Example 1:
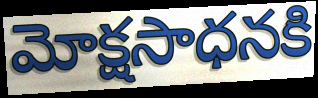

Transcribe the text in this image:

మోక్షసాధనకి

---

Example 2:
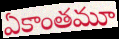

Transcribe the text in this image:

ఏకాంతమూ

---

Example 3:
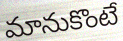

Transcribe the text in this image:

మానుకొంటే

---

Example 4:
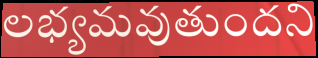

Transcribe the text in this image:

లభ్యమవుతుందని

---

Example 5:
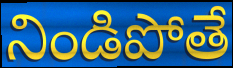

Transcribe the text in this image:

నిండిపోతే